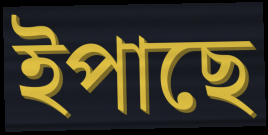
ইপাছে